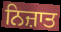
ਨਿਜ਼ਾਤ